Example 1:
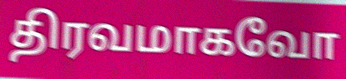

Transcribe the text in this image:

திரவமாகவோ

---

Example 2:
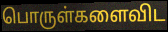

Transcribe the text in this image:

பொருள்களைவிட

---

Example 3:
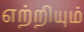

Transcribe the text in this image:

எற்றியும்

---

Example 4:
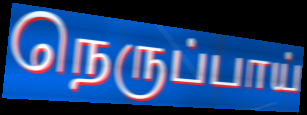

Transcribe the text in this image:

நெருப்பாய்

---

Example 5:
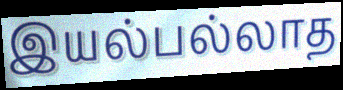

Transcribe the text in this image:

இயல்பல்லாத